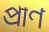
প্ৰাণ